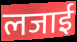
लजाई